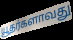
யூதர்களாவது